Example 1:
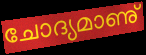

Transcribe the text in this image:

ചോദ്യമാണു്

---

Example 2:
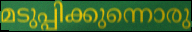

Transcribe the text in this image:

മടുപ്പിക്കുന്നൊരു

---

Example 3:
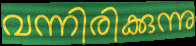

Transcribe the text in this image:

വന്നിരിക്കുന്നു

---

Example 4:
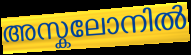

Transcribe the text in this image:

അസ്കലോനിൽ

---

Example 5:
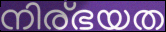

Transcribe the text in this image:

നിര്ഭയത